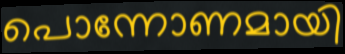
പൊന്നോണമായി